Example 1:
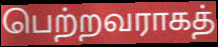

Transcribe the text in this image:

பெற்றவராகத்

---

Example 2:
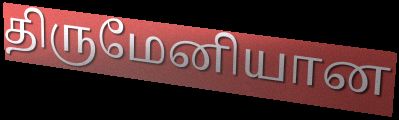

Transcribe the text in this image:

திருமேனியான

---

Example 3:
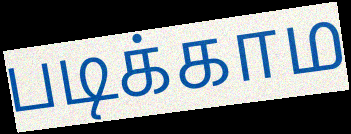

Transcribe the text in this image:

படிக்காம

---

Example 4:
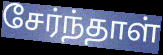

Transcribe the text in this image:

சேர்ந்தாள்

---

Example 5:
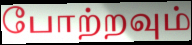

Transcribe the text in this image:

போற்றவும்